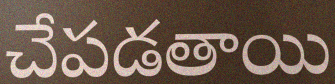
చేపడతాయి